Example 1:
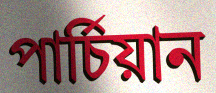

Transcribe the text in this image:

পাৰ্চিয়ান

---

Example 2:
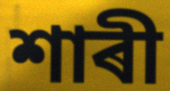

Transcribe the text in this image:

শাৰী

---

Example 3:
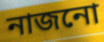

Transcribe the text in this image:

নাজনো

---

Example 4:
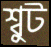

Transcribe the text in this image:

শ্বুট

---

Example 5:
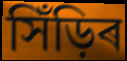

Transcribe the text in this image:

সিঁড়িৰ